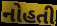
નોહતી